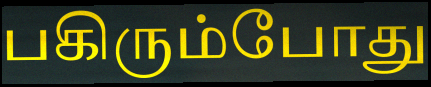
பகிரும்போது